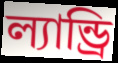
ল্যান্ড্রি